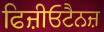
ਫਿਜ਼ੀਓਟੈਨਜ਼